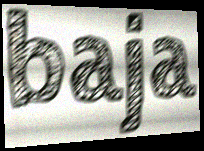
baja